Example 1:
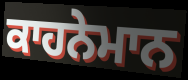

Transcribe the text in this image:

ਕਾਹਨੇਮਾਨ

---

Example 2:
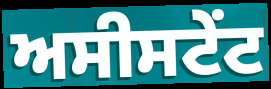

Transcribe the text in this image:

ਅਸੀਸਟੇਂਟ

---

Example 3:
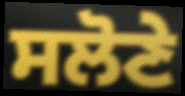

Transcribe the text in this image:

ਸਲੋਣੇ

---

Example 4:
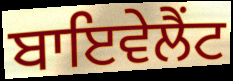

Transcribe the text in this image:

ਬਾਇਵੇਲੈਂਟ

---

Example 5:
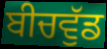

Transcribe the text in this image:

ਬੀਚਵੁੱਡ